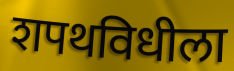
शपथविधीला